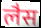
लैस